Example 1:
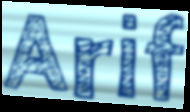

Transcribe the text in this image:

Arif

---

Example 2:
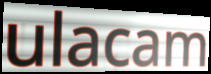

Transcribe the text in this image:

ulacam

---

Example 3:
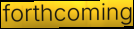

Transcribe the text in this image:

forthcoming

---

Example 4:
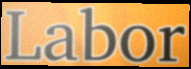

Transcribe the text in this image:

Labor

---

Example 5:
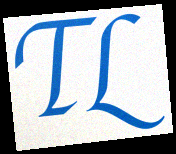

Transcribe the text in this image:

TL